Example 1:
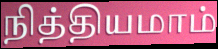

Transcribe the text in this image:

நித்தியமாம்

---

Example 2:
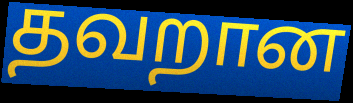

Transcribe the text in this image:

தவறான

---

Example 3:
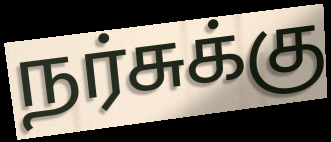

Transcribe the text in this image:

நர்சுக்கு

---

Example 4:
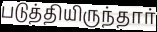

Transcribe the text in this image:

படுத்தியிருந்தார்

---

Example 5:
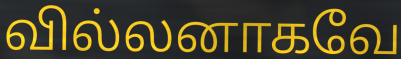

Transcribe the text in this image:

வில்லனாகவே